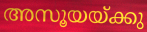
അസൂയയ്ക്കു